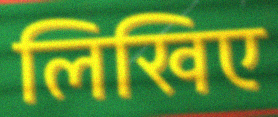
लिखिए